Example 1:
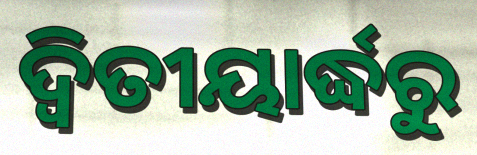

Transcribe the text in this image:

ଦ୍ଵିତୀୟାର୍ଦ୍ଧରୁ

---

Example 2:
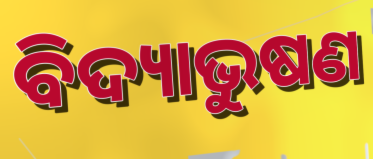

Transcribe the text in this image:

ବିଦ୍ୟାଭୁଷଣ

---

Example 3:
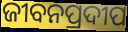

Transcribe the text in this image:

ଜୀବନପ୍ରଦୀପ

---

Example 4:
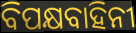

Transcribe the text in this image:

ବିପକ୍ଷବାହିନୀ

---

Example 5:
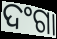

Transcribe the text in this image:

ଦଂଗା